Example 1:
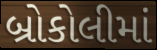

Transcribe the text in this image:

બ્રોકોલીમાં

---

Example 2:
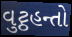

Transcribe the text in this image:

વુટ્ઠહન્તો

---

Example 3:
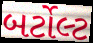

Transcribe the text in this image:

બર્ટોલ્ટ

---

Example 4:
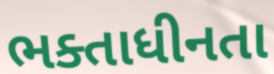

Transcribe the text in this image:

ભક્તાધીનતા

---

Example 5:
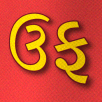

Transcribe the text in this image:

ઉફ